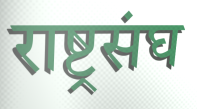
राष्ट्रसंघ